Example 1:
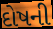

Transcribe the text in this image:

દોષની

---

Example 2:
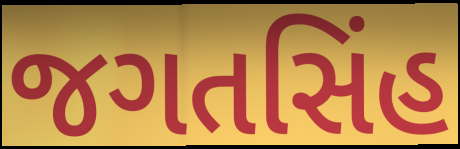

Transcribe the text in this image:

જગતસિંહ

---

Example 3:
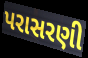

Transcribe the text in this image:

પરાસરણી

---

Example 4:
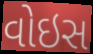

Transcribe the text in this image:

વોઇસ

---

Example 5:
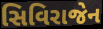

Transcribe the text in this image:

સિવિરાજેન